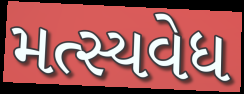
મત્સ્યવેધ